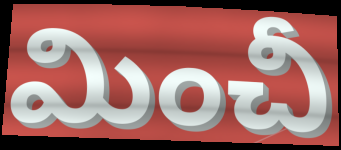
మించీ